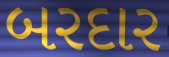
બરદાર